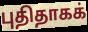
புதிதாகக்